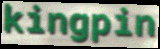
kingpin